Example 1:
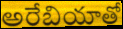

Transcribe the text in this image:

అరేబియాతో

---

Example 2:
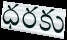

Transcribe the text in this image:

ధరకు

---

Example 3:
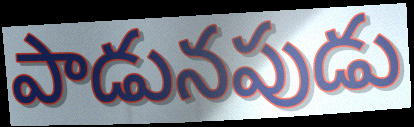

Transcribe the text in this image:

పాడునపుడు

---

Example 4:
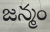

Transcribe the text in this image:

జన్మం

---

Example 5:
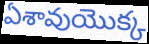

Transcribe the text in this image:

ఏశావుయొక్క